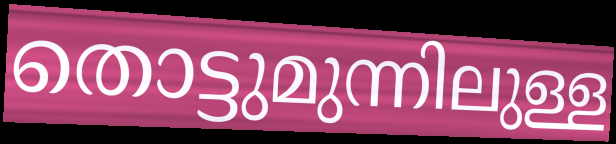
തൊട്ടുമുന്നിലുള്ള